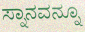
ಸ್ನಾನವನ್ನೂ